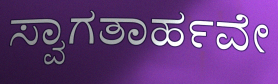
ಸ್ವಾಗತಾರ್ಹವೇ